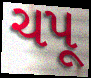
ચપૂ